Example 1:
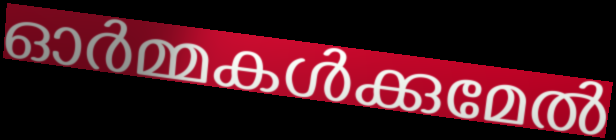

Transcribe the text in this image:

ഓർമ്മകൾക്കുമേൽ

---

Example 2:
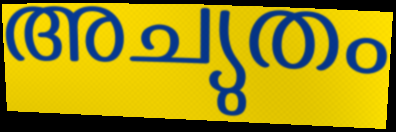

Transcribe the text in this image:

അച്യുതം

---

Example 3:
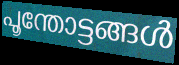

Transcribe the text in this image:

പൂന്തോട്ടങ്ങൾ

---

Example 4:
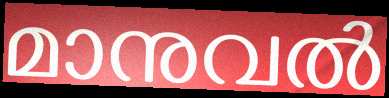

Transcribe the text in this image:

മാനുവൽ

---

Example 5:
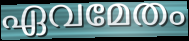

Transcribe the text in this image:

ഏവമേതം